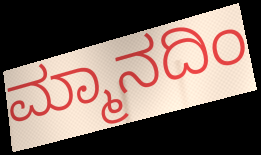
ಮ್ಮಾನದಿಂ